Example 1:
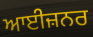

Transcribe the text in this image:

ਆਈਜ਼ਨਰ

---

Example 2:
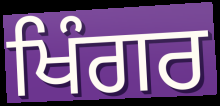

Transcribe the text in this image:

ਖਿੰਗਰ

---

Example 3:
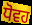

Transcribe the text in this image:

ਧੋਵਹ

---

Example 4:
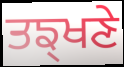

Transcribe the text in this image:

ਤਙ੍ਖਣੇ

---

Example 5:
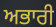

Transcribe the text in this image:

ਅਭਾਰੀ